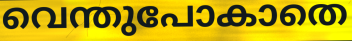
വെന്തുപോകാതെ